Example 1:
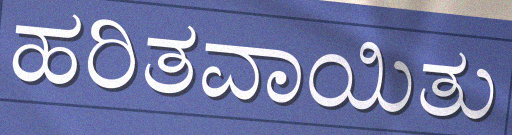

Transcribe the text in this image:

ಹರಿತವಾಯಿತು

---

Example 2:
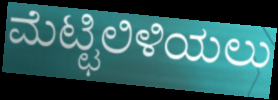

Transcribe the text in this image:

ಮೆಟ್ಟಿಲಿಳಿಯಲು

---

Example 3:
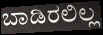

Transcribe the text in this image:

ಬಾಡಿರಲಿಲ್ಲ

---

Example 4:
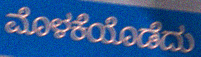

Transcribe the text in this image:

ಮೊಳಕೆಯೊಡೆದು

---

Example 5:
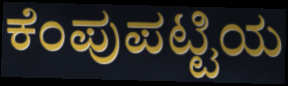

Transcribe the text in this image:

ಕೆಂಪುಪಟ್ಟಿಯ